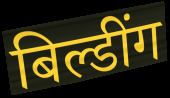
बिल्डींग